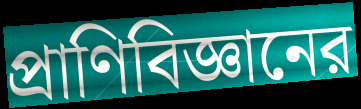
প্রাণিবিজ্ঞানের